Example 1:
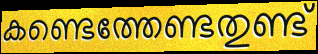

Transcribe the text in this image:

കണ്ടെത്തേണ്ടതുണ്ട്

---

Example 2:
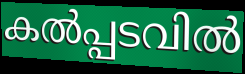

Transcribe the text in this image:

കൽപ്പടവിൽ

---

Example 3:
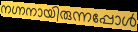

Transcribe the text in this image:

നഗ്നനായിരുന്നപ്പോൾ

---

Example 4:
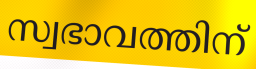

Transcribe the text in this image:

സ്വഭാവത്തിന്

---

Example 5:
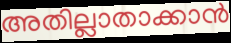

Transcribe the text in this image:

അതില്ലാതാക്കാൻ